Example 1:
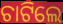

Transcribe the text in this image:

ଚାଟିଲେ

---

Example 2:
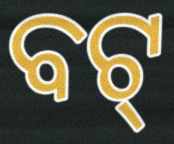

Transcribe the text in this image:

ବଟ୍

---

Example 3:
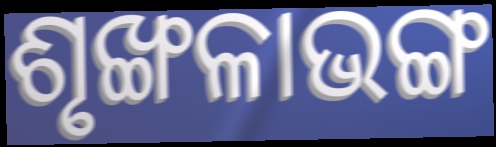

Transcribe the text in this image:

ଶୃଙ୍ଖଳାଭଙ୍ଗ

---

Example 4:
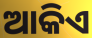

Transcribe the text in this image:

ଆକିଏ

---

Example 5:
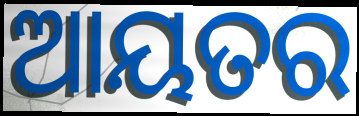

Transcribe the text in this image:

ଆୟତର